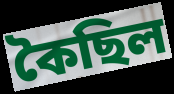
কৈছিল